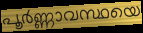
പൂർണ്ണാവസ്ഥയെ